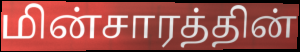
மின்சாரத்தின்